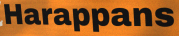
Harappans